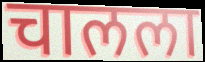
चालला